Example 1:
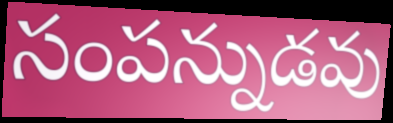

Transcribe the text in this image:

సంపన్నుడవు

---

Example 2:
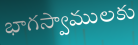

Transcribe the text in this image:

భాగస్వాములకు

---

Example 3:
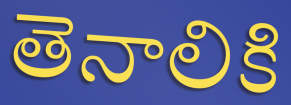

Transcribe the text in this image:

తెనాలికి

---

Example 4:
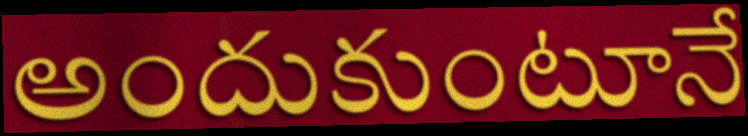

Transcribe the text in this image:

అందుకుంటూనే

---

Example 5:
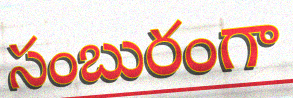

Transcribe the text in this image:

సంబురంగా